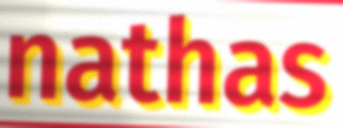
nathas